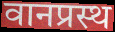
वानप्रस्थ